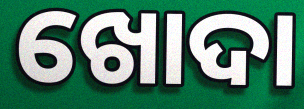
ଖୋଦା